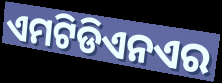
ଏମଟିଡିଏନଏର